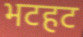
भटहट